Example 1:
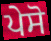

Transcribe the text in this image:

ਪੇਸੋ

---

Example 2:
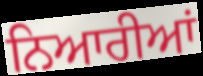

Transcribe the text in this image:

ਨਿਆਰੀਆਂ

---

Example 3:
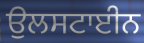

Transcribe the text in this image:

ਉਲਸਟਾਈਨ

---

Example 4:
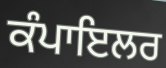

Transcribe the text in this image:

ਕੰਪਾਇਲਰ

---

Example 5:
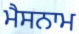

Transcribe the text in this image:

ਮੈਸਨਾਮ